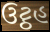
ઉટ્ઠહ